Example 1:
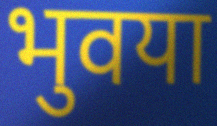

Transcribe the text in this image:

भुवया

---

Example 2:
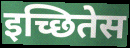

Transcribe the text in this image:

इच्छितेस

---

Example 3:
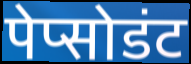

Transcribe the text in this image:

पेप्सोडंट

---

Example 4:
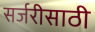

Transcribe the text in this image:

सर्जरीसाठी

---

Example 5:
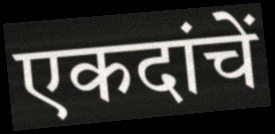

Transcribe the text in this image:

एकदांचें